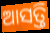
ଆସତ୍ତି